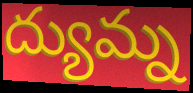
ద్యుమ్న